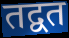
तद्वत